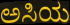
ಅಸಿಯ